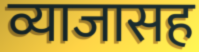
व्याजासह